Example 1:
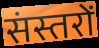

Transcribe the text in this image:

संस्तरों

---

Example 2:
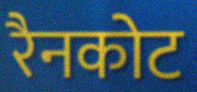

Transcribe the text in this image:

रैनकोट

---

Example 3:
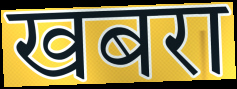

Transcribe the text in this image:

खबरा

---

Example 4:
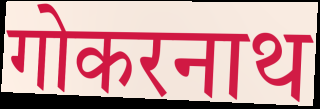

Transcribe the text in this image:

गोकरनाथ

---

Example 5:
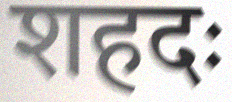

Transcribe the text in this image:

शहदः